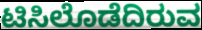
ಟಿಸಿಲೊಡೆದಿರುವ